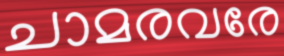
ചാമരവരേ